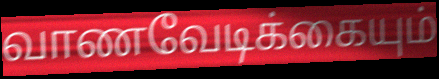
வாணவேடிக்கையும்